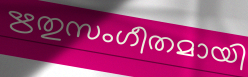
ഋതുസംഗീതമായി